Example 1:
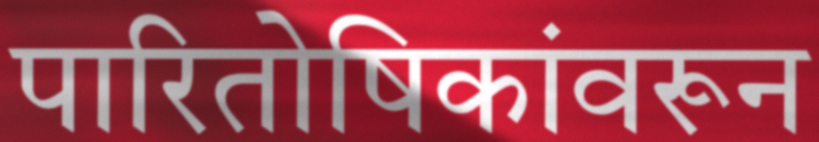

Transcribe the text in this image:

पारितोषिकांवरून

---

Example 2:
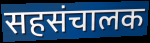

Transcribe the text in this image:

सहसंचालक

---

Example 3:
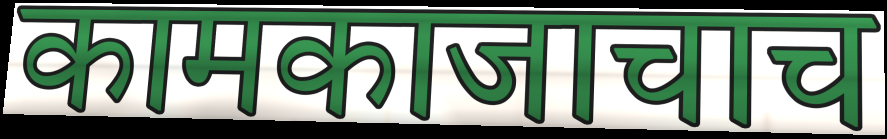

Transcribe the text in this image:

कामकाजाचाच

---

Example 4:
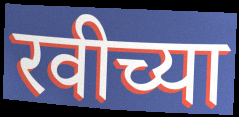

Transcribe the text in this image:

रवीच्या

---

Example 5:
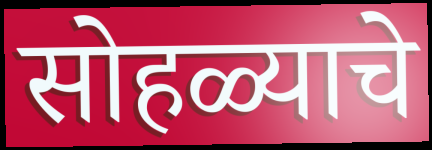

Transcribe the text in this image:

सोहळ्याचे